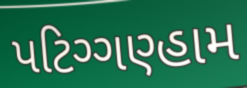
પટિગ્ગણ્હામ